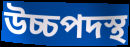
উচ্চপদস্থ